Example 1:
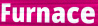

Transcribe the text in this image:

Furnace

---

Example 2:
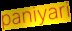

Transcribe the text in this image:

paniyari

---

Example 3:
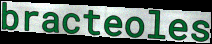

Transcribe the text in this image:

bracteoles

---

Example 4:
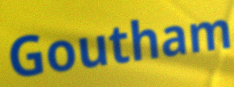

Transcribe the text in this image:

Goutham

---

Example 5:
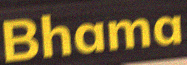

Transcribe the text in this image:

Bhama